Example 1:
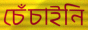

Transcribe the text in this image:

চেঁচাইনি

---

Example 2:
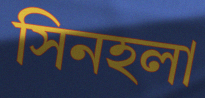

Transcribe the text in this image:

সিনহলা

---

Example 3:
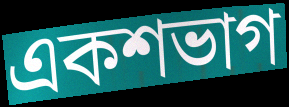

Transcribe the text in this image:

একশভাগ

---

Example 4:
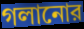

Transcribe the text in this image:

গলানোর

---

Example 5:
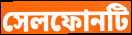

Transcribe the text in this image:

সেলফোনটি